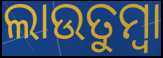
ଲାଉତୁମ୍ବା